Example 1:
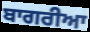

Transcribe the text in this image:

ਬਾਗਰੀਆ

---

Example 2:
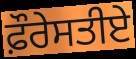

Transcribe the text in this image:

ਫ਼ੌਰੇਸਤੀਏ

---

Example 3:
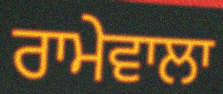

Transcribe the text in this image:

ਰਾਮੇਵਾਲਾ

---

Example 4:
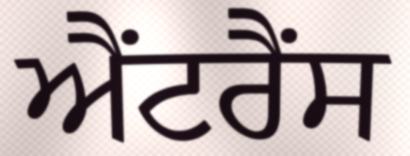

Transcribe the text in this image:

ਐਂਟਰੈਂਸ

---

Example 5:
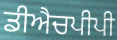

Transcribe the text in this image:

ਡੀਐਚਪੀਪੀ